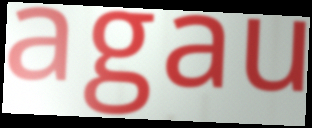
agau